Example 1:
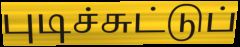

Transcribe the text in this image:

புடிச்சுட்டுப்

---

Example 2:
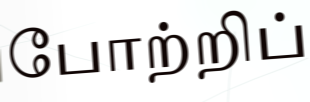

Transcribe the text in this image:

போற்றிப்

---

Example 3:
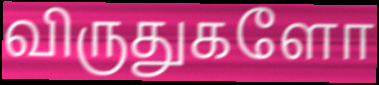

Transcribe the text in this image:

விருதுகளோ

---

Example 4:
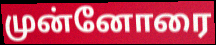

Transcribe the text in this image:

முன்னோரை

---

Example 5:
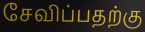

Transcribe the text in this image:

சேவிப்பதற்கு